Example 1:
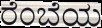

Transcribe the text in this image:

ರೆಂಬೆಯ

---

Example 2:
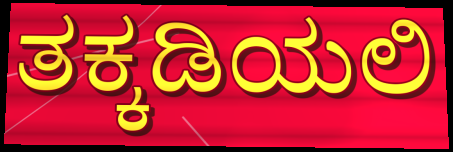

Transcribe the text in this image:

ತಕ್ಕಡಿಯಲಿ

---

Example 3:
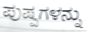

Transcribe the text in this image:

ಪುಷ್ಪಗಳನ್ನು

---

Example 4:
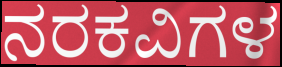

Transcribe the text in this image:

ನರಕವಿಗಳ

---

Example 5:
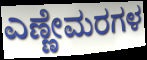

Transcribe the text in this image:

ಎಣ್ಣೇಮರಗಳ